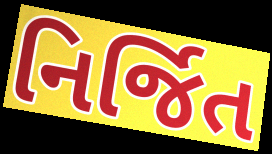
નિર્જિત